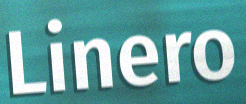
Linero